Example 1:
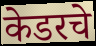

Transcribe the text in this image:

केडरचे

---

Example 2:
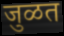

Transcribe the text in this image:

जुळत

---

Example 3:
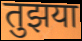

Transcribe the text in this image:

तुझया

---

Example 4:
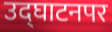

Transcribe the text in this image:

उद्घाटनपर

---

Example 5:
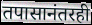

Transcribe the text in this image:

तपासानंतरही